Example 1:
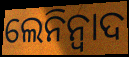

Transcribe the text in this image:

ଲେନିନ୍ବାଦ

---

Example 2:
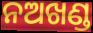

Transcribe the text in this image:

ନଅଖଣ୍ଡ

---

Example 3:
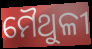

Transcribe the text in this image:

ମୈଥୁଳୀ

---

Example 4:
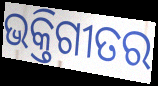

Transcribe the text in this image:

ଭକ୍ତିଗୀତର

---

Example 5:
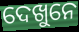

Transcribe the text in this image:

ଦେଖୁନେ